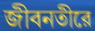
জীবনতীরে